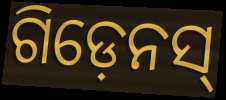
ଗିଡ଼େନସ୍